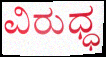
ವಿರುಧ್ಧ